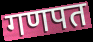
गणपत